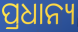
ପ୍ରଧାନ୍ୟ